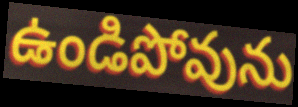
ఉండిపోవును